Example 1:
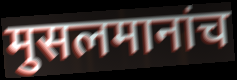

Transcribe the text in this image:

मुसलमानांच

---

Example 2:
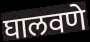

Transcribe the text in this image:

घालवणे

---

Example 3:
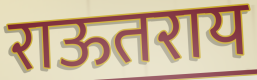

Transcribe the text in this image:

राऊतराय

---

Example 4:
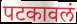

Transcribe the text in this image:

पटकावलं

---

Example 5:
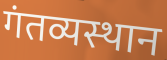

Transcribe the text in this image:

गंतव्यस्थान